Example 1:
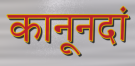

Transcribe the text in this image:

कानूनदां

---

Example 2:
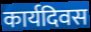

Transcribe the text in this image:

कार्यदिवस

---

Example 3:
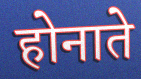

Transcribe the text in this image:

होनाते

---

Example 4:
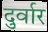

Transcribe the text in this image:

दुर्वार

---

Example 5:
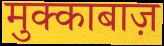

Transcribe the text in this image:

मुक्काबाज़